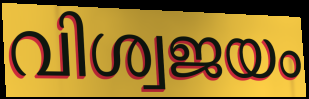
വിശ്വജയം